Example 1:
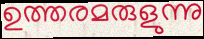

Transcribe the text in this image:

ഉത്തരമരുളുന്നു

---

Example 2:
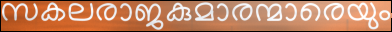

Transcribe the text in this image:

സകലരാജകുമാരന്മാരെയും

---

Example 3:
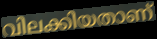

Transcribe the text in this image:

വിലക്കിയതാണ്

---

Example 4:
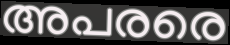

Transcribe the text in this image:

അപരരെ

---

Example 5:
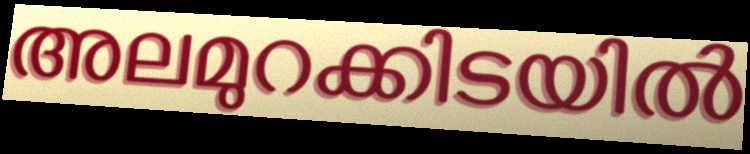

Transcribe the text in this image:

അലമുറക്കിടയിൽ